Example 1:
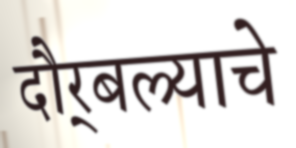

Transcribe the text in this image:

दौर्बल्याचे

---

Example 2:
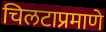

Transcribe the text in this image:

चिलटाप्रमाणे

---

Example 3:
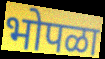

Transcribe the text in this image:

भोपळा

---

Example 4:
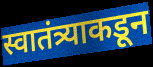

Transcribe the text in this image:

स्वातंत्र्याकडून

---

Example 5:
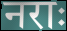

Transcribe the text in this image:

नराः